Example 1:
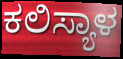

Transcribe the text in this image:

ಕಲಿಸ್ಯಾಳ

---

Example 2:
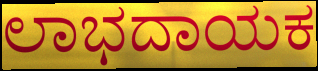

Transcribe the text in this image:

ಲಾಭದಾಯಕ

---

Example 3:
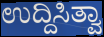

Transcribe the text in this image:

ಉದ್ದಿಸಿತ್ವಾ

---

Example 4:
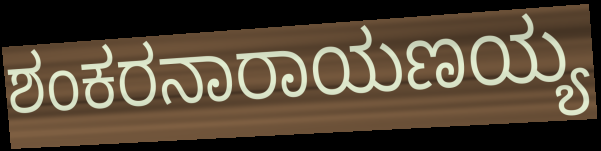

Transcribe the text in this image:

ಶಂಕರನಾರಾಯಣಯ್ಯ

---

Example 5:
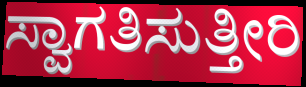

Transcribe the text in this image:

ಸ್ವಾಗತಿಸುತ್ತೀರಿ